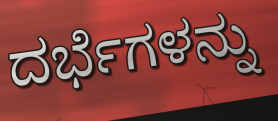
ದರ್ಭೆಗಳನ್ನು